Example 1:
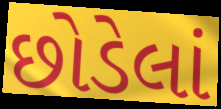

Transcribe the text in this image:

છોડેલાં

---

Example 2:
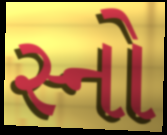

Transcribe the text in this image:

સ્નો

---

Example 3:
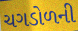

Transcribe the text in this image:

ચગડોળની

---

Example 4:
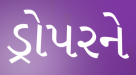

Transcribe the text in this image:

ડ્રોપરને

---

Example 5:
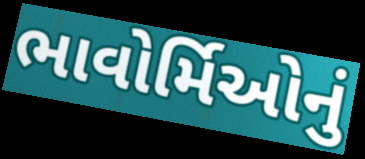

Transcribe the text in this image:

ભાવોર્મિઓનું